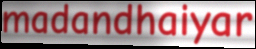
madandhaiyar